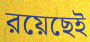
রয়েছেই